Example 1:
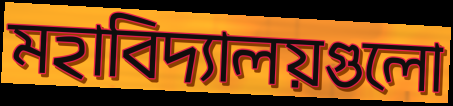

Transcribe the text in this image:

মহাবিদ্যালয়গুলো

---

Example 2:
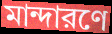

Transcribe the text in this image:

মান্দারণে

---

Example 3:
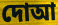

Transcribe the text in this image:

দোআ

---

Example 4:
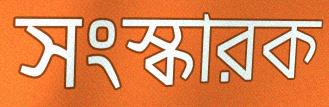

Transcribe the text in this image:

সংস্কারক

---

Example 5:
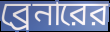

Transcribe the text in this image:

ব্রেনারের